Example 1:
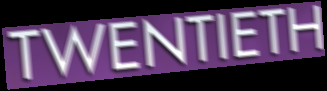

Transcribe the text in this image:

TWENTIETH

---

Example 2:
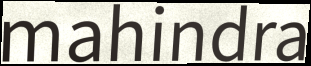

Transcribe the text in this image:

mahindra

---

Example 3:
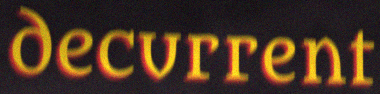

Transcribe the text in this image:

decurrent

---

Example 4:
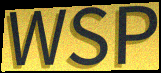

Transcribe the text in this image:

WSP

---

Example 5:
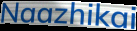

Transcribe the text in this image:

Naazhikai